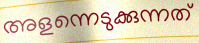
അളന്നെടുക്കുന്നത്